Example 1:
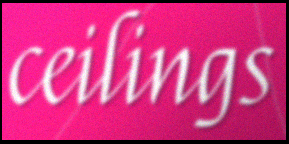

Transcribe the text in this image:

ceilings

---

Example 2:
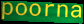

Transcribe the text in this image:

poorna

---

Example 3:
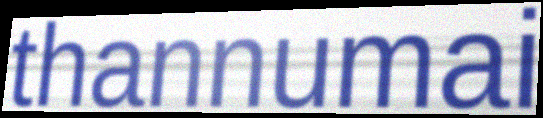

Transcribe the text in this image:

thannumai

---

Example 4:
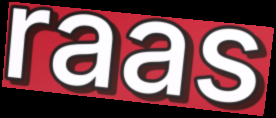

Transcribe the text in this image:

raas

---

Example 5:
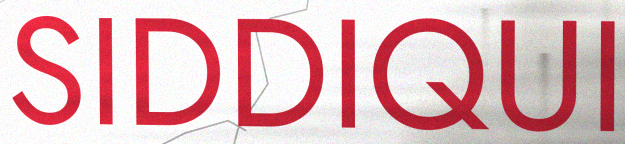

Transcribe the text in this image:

SIDDIQUI